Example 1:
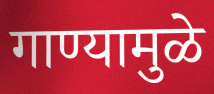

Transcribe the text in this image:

गाण्यामुळे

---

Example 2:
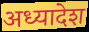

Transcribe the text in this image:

अध्यादेश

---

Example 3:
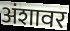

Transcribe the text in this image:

अंशावर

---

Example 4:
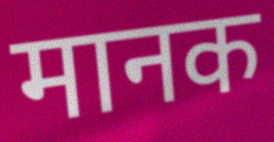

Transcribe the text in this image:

मानक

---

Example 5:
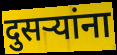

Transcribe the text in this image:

दुसऱ्यांना